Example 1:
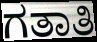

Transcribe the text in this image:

ಗತಾತಿ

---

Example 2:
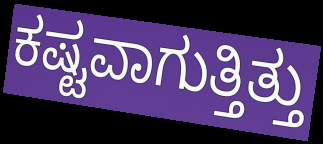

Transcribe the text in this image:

ಕಷ್ಟವಾಗುತ್ತಿತ್ತು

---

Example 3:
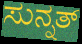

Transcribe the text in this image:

ಸುನ್ನತ್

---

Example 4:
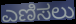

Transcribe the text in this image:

ಎಣಿಸಲು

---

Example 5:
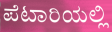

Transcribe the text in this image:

ಪೆಟಾರಿಯಲ್ಲಿ